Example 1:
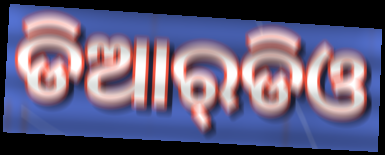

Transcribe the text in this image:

ଡିଆର୍‌ଡିଓ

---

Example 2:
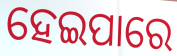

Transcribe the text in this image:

ହେଇପାରେ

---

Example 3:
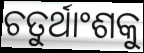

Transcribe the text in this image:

ଚତୁର୍ଥାଂଶକୁ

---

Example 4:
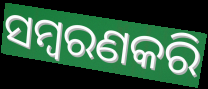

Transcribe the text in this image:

ସମ୍ବରଣକରି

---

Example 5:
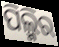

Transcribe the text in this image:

ପିଲ୍ମିର